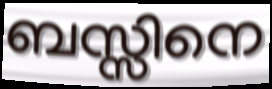
ബസ്സിനെ